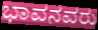
ಭಾವನವರು